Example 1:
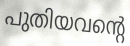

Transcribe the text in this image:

പുതിയവന്റെ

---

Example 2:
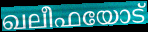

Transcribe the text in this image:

ഖലീഫയോട്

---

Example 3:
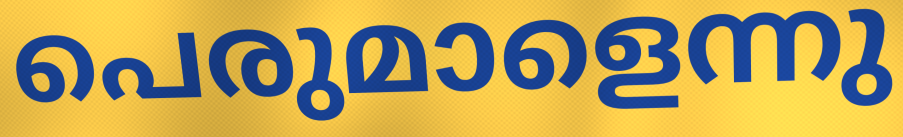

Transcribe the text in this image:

പെരുമാളെന്നു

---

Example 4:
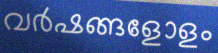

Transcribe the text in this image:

വർഷങ്ങളോളം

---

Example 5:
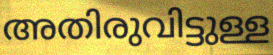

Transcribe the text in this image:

അതിരുവിട്ടുള്ള